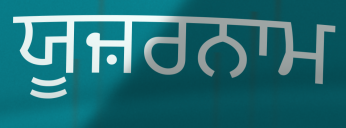
ਯੂਜ਼ਰਨਾਮ